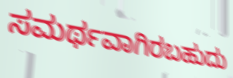
ಸಮರ್ಥವಾಗಿರಬಹುದು